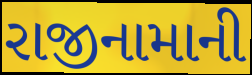
રાજીનામાની